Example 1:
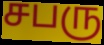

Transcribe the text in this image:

சபரு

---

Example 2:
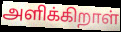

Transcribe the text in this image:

அளிக்கிறாள்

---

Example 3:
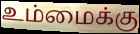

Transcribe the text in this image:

உம்மைக்கு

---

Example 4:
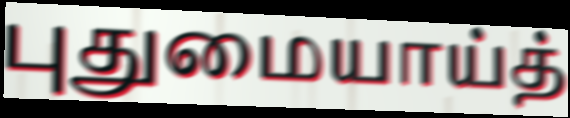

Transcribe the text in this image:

புதுமையாய்த்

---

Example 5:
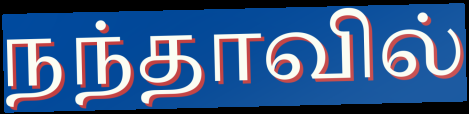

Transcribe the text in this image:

நந்தாவில்